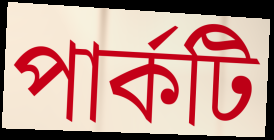
পার্কটি